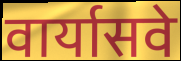
वार्यासवे